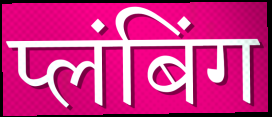
प्लंबिंग